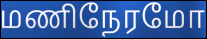
மணிநேரமோ